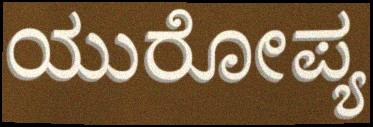
ಯುರೋಪ್ಯ